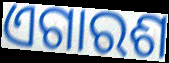
ଏଗାରଶ